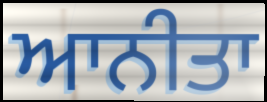
ਆਨੀਤਾ